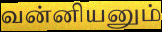
வன்னியனும்